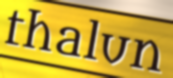
thalun